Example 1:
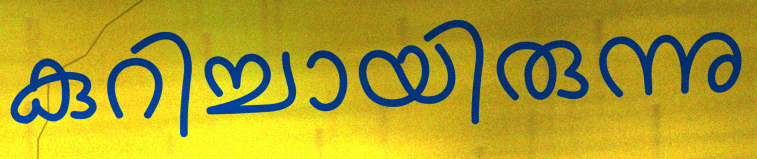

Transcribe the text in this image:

കുറിച്ചായിരുന്നു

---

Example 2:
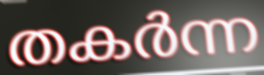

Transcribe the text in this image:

തകർന്ന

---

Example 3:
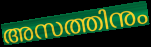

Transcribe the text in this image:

അസത്തിനും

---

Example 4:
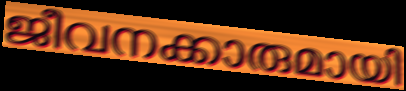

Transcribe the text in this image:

ജീവനക്കാരുമായി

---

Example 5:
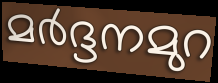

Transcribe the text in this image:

മർദ്ദനമുറ